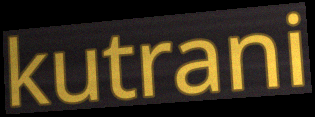
kutrani